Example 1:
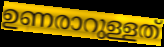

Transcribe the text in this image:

ഉണരാറുള്ളത്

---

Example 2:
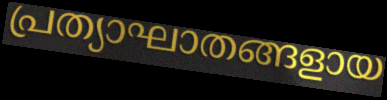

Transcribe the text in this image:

പ്രത്യാഘാതങ്ങളായ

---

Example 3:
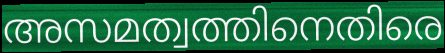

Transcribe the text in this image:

അസമത്വത്തിനെതിരെ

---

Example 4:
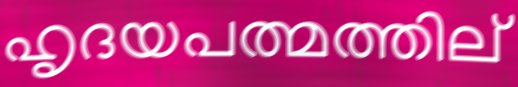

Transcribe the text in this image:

ഹൃദയപത്മത്തില്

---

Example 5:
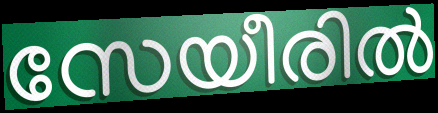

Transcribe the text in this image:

സേയീരിൽ